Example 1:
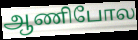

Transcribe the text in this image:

ஆணிபோல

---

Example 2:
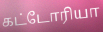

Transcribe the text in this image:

கட்டோரியா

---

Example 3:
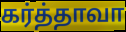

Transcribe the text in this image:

கர்த்தாவா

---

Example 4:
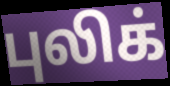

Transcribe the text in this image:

புலிக்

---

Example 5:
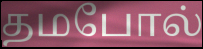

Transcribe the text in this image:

தமபோல்